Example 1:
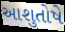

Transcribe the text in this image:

આશુતોષે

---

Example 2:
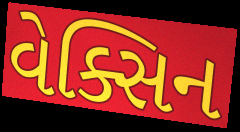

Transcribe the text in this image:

વેક્સિન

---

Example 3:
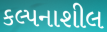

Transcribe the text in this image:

કલ્પનાશીલ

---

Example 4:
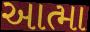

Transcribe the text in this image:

આત્મા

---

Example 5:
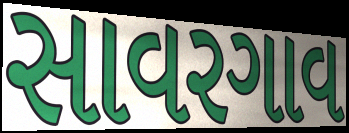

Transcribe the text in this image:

સાવરગાવ